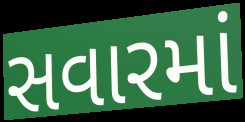
સવારમાં